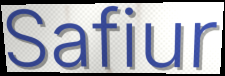
Safiur